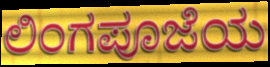
ಲಿಂಗಪೂಜೆಯ